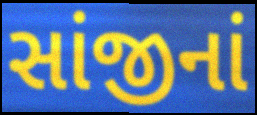
સાંજીનાં